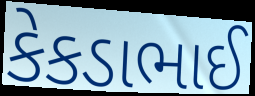
કેકડાભાઈ